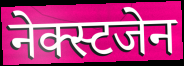
नेक्स्टजेन